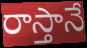
రాస్తానే